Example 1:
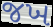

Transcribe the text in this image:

જખ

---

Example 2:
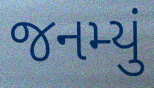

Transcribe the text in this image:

જનમ્યું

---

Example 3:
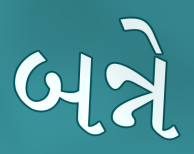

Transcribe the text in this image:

બન્ને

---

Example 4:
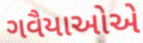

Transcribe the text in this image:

ગવૈયાઓએ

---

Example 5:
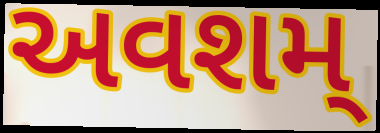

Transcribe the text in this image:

અવશમ્